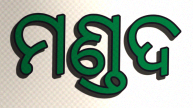
ମଣ୍ଡଦ